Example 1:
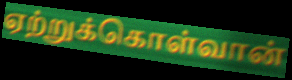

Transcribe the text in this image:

ஏற்றுக்கொள்வான்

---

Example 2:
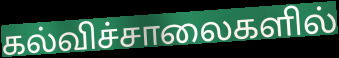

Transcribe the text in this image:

கல்விச்சாலைகளில்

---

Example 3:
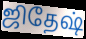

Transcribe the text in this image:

ஜிதேஷ்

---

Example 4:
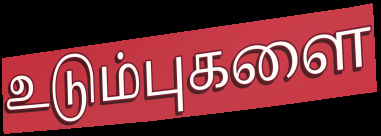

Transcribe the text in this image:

உடும்புகளை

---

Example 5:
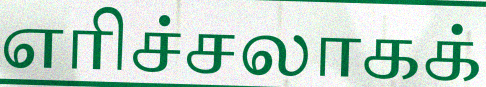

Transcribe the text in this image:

எரிச்சலாகக்